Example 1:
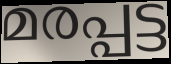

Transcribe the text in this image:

മരപ്പട്ട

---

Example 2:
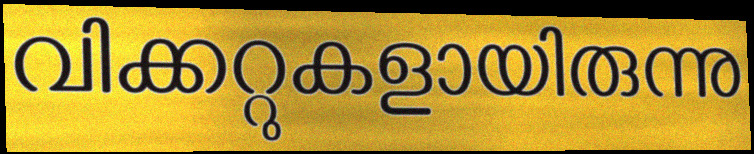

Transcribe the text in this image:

വിക്കറ്റുകളായിരുന്നു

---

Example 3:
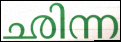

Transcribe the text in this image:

ഛിന്ന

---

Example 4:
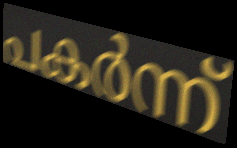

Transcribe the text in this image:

പകർന്ന്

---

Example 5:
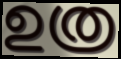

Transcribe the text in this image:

ഉത്ര